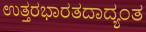
ಉತ್ತರಭಾರತದಾದ್ಯಂತ